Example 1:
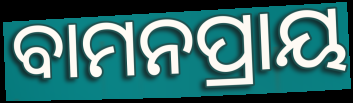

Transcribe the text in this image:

ବାମନପ୍ରାୟ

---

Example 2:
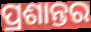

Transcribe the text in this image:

ପ୍ରଶାନ୍ତର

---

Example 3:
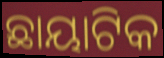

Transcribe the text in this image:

ଛାୟାଟିକ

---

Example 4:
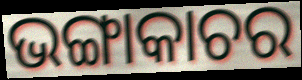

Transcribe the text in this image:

ଭଙ୍ଗାକାଚର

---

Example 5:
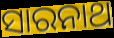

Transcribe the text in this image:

ସାରନାଥ